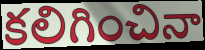
కలిగించినా